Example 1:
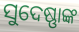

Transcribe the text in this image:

ସୁଦେଷ୍ଣାଙ୍କ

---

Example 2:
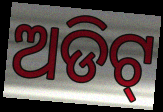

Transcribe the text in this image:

ଅଡିଟ୍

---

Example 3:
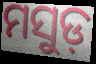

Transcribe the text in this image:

ମସୁଡ଼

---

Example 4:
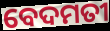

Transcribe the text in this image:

ବେଦମତୀ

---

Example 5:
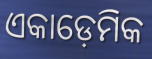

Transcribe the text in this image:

ଏକାଡ଼େମିକ